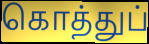
கொத்துப்